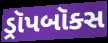
ડ્રૉપબૉક્સ